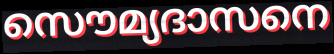
സൌമ്യദാസനെ